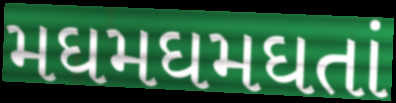
મઘમઘમઘતાં